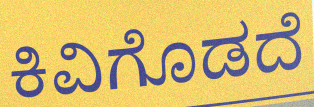
ಕಿವಿಗೊಡದೆ